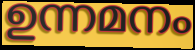
ഉന്നമനം